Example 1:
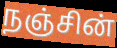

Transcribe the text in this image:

நஞ்சின்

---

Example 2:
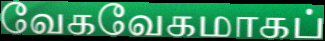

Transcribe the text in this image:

வேகவேகமாகப்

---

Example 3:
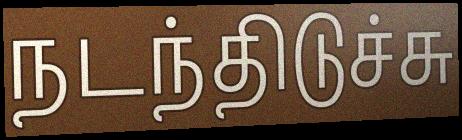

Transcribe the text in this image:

நடந்திடுச்சு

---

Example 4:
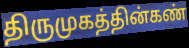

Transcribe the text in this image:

திருமுகத்தின்கண்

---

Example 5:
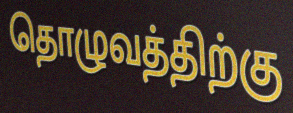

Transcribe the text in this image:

தொழுவத்திற்கு